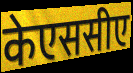
केएससीए